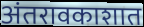
अंतरावकाशात